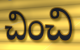
చించి